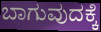
ಬಾಗುವುದಕ್ಕೆ